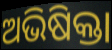
ଅଭିଷିକ୍ତା